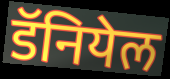
डॅनियेल